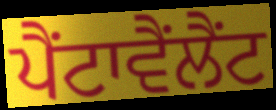
ਪੈਂਟਾਵੈਂਲੈਂਟ